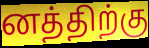
னத்திற்கு